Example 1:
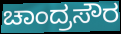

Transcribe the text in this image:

ಚಾಂದ್ರಸೌರ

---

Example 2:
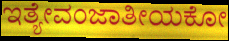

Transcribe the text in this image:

ಇತ್ಯೇವಂಜಾತೀಯಕೋ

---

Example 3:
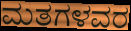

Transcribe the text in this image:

ಮತಗಳವರ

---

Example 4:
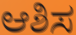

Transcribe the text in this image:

ಆಶಿಸ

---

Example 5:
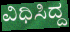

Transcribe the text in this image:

ವಿಧಿಸಿದ್ದ